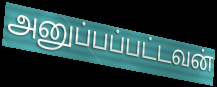
அனுப்பப்பட்டவன்